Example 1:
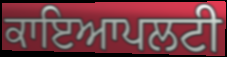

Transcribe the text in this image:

ਕਾਇਆਪਲਟੀ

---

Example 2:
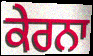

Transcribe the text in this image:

ਕੇਰਨਾ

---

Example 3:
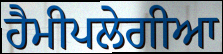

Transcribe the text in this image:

ਹੈਮੀਪਲੇਗੀਆ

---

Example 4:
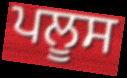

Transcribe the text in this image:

ਪਲੂਸ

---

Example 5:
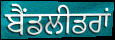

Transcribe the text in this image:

ਬੈਂਡਲੀਡਰਾਂ